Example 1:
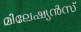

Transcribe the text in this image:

മിലേഷ്യൻസ്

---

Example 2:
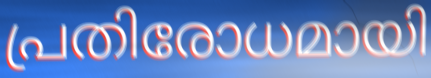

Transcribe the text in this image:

പ്രതിരോധമായി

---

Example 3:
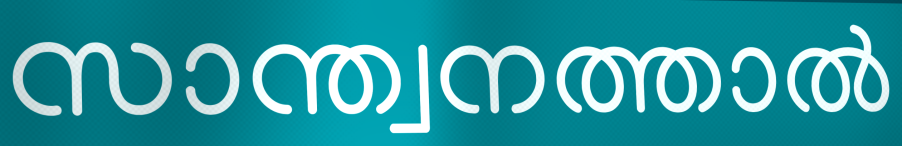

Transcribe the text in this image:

സാന്ത്വനത്താൽ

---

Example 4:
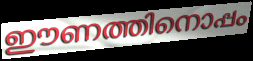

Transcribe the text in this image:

ഈണത്തിനൊപ്പം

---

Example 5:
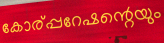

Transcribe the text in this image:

കോര്പ്പറേഷന്റെയും